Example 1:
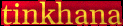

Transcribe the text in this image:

tinkhana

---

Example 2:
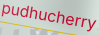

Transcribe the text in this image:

pudhucherry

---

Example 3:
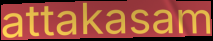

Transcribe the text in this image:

attakasam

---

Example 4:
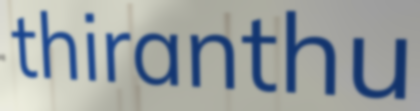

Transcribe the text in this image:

thiranthu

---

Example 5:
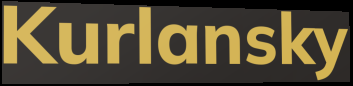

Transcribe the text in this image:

Kurlansky